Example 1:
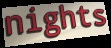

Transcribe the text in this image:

nights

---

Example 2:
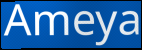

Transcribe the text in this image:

Ameya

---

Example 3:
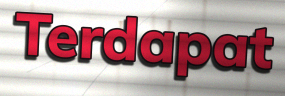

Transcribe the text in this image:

Terdapat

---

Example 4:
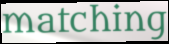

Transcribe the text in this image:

matching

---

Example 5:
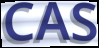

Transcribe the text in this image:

CAS